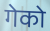
गेको